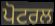
ਪੋਟਰਲ